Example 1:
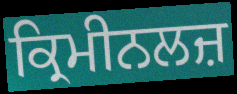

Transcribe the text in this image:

ਕ੍ਰਿਮੀਨਲਜ਼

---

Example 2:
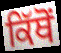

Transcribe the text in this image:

ਕਿੱਥੋੰ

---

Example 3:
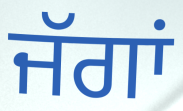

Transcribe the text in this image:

ਜੱਗਾਂ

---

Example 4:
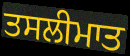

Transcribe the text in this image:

ਤਸਲੀਮਾਤ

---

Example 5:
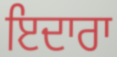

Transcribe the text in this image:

ਇਦਾਰਾ